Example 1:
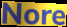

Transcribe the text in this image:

Nore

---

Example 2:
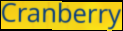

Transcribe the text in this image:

Cranberry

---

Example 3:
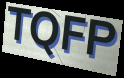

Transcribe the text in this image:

TQFP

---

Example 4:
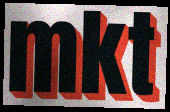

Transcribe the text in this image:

mkt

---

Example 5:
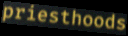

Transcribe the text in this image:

priesthoods